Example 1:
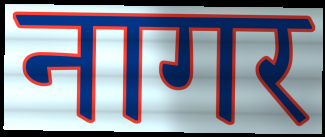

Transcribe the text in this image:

नागर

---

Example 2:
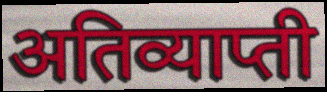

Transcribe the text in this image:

अतिव्याप्ती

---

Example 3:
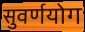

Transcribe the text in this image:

सुवर्णयोग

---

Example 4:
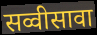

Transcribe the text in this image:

सव्वीसावा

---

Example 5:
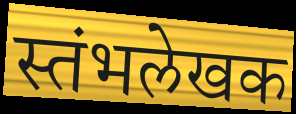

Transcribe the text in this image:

स्तंभलेखक